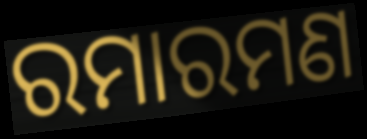
ରମାରମଣ